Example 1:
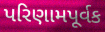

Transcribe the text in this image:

પરિણામપૂર્વક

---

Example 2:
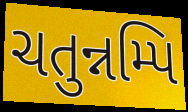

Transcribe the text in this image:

ચતુન્નમ્પિ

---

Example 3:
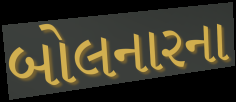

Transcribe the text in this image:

બોલનારના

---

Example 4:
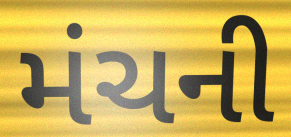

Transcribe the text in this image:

મંચની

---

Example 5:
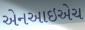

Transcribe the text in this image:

એનઆઇએચ